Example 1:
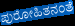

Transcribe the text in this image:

ಪುರೋಹಿತನಂತೆ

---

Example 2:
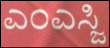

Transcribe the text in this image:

ಎಂಎಸ್ಜಿ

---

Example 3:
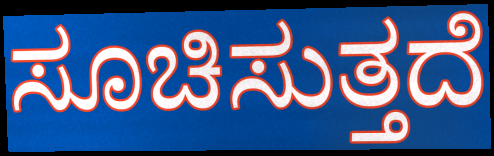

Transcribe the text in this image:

ಸೂಚಿಸುತ್ತದೆ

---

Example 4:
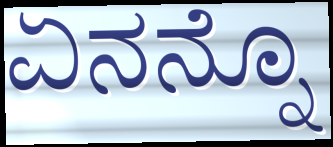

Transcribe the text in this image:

ಏನನ್ನೊ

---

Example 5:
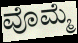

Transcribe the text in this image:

ವೊಮ್ಮೆ